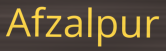
Afzalpur